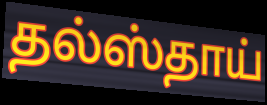
தல்ஸ்தாய்